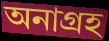
অনাগ্রহ